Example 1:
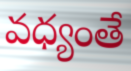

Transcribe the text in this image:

వధ్యంతే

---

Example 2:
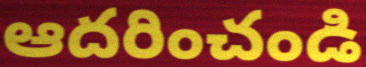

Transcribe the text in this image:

ఆదరించండి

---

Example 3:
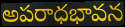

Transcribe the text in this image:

అపరాధభావన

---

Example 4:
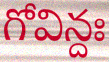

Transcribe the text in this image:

గోవిన్దః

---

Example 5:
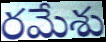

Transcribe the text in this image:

రమేశు